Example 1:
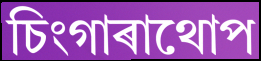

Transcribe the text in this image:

চিংগাৰাথোপ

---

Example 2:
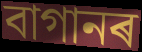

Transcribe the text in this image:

বাগানৰ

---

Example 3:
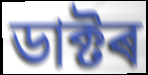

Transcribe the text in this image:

ডাক্টৰ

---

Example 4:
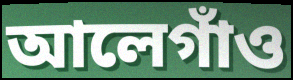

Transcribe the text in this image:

আলেগাঁও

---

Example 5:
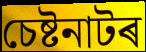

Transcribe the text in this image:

চেষ্টনাটৰ